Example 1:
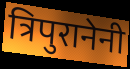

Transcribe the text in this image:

त्रिपुरानेनी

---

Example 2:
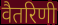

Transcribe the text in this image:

वैतरिणी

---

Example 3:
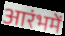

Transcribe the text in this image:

आरंभमें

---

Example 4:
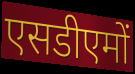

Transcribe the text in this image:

एसडीएमों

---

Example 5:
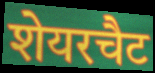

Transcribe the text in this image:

शेयरचैट